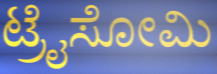
ಟ್ರೈಸೋಮಿ